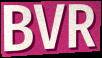
BVR